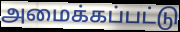
அமைக்கப்பட்டு